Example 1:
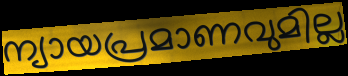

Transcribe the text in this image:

ന്യായപ്രമാണവുമില്ല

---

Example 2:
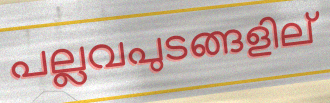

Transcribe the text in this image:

പല്ലവപുടങ്ങളില്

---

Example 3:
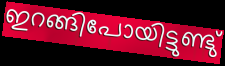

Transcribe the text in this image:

ഇറങ്ങിപോയിട്ടുണ്ടു്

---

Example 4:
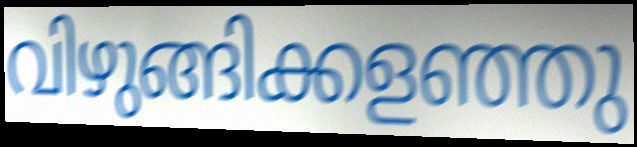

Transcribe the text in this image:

വിഴുങ്ങിക്കളഞ്ഞു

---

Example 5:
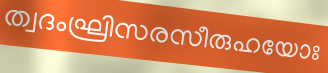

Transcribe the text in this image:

ത്വദംഘ്രിസരസീരുഹയോഃ